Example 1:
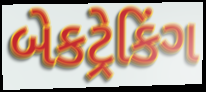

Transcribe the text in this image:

બેકટ્રેકિંગ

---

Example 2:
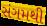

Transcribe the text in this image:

સંગમથી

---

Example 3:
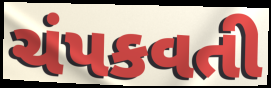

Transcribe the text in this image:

ચંપકવતી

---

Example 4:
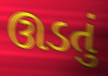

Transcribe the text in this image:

ઊડતું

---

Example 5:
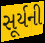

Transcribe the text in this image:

સૂર્યની